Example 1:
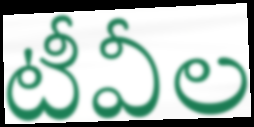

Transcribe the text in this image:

టీవీల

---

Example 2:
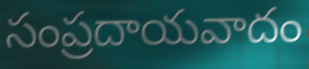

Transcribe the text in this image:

సంప్రదాయవాదం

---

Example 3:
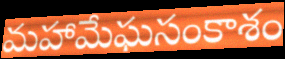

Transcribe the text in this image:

మహామేఘసంకాశం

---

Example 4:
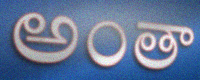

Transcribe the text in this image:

అంతా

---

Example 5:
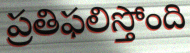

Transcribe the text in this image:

ప్రతిఫలిస్తోంది